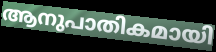
ആനുപാതികമായി